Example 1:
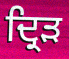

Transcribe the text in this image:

ਦ੍ਰਿਡ਼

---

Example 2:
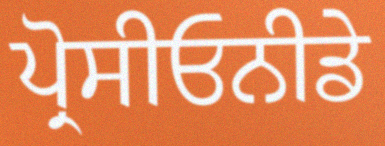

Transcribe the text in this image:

ਪ੍ਰੋਸੀਓਨੀਡੇ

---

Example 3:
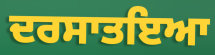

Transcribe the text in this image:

ਦਰਸਾਤਇਆ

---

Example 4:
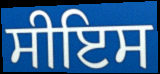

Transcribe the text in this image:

ਸੀਇਸ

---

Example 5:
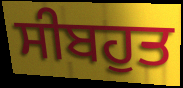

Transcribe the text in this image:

ਸੀਬਹੁਤ